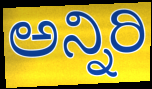
ಅನ್ನಿರಿ